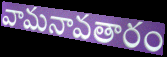
వామనావతారం